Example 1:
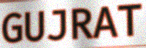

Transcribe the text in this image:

GUJRAT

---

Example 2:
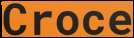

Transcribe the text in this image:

Croce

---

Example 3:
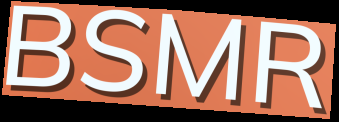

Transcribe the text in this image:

BSMR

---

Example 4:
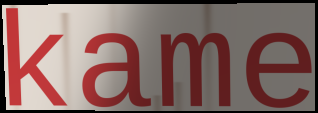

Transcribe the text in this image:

kame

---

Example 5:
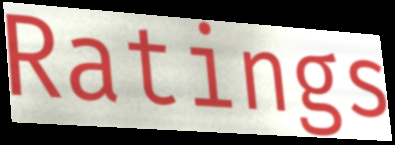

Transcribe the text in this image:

Ratings